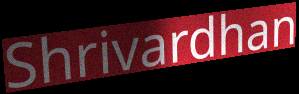
Shrivardhan